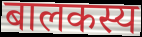
बालकस्य